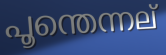
പൂന്തെന്നല്